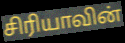
சிரியாவின்